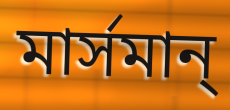
মার্সমান্